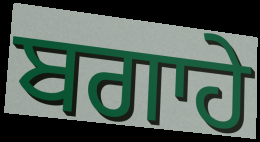
ਬਗਾਹੇ